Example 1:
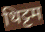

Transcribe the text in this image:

थिट्टम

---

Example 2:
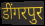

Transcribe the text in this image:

डींगरपुर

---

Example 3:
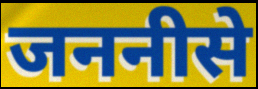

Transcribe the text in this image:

जननीसे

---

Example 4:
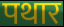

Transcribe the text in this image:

पथार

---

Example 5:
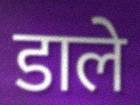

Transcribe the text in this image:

डाले